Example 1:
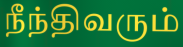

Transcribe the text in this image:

நீந்திவரும்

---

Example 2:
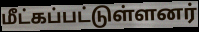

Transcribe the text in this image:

மீட்கப்பட்டுள்ளனர்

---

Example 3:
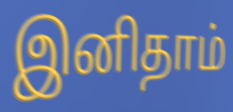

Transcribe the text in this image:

இனிதாம்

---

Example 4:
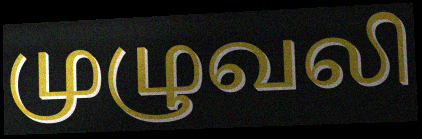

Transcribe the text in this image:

முழுவலி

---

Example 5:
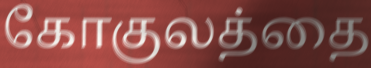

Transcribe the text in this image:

கோகுலத்தை